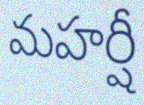
మహర్షీ